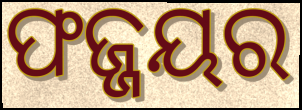
ଫଜ୍ଜୟର